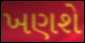
ખણશે